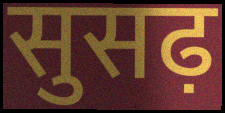
सुसढ़